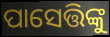
ପାସେତ୍ତିଙ୍କୁ